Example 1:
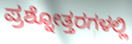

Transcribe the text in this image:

ಪ್ರಶ್ನೋತ್ತರಗಳಲ್ಲಿ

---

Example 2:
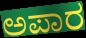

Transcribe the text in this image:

ಅಪಾರ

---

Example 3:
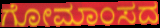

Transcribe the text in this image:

ಗೋಮಾಂಸದ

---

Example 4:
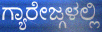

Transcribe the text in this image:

ಗ್ಯಾರೇಜ್ಗಳಲ್ಲಿ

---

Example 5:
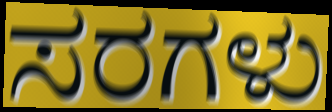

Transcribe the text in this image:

ಸರಗಳು